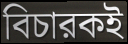
বিচারকই